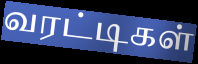
வரட்டிகள்